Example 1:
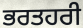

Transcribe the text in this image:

ਭਰਤਹਰੀ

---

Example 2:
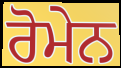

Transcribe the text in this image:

ਰੋਮੇਨ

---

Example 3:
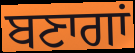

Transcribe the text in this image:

ਬਣਾਗਾਂ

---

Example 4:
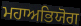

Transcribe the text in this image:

ਮਹਾਅਭਿਯੋਗ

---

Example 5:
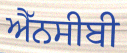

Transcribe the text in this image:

ਐੱਨਸੀਬੀ